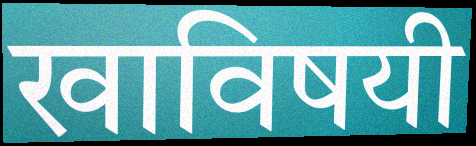
खाविषयी